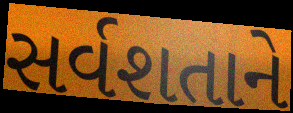
સર્વશતાને